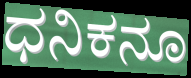
ಧನಿಕನೂ